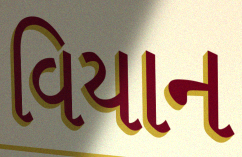
વિયાન